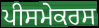
ਪੀਸਮੇਕਰਸ